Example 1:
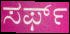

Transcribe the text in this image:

ಸರ್ಫ್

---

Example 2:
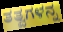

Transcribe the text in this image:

ತತ್ವಗಳನ್ನ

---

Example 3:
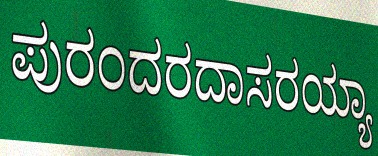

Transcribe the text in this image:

ಪುರಂದರದಾಸರಯ್ಯಾ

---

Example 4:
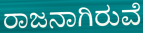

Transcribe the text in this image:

ರಾಜನಾಗಿರುವೆ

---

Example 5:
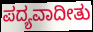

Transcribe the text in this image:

ಪದ್ಯವಾದೀತು